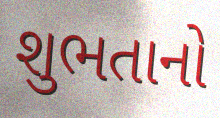
શુભતાનો